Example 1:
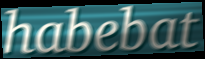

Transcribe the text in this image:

habebat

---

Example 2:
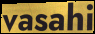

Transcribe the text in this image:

vasahi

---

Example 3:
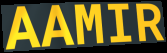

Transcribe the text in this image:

AAMIR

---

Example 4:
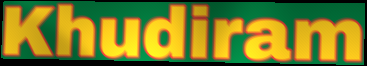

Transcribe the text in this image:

Khudiram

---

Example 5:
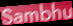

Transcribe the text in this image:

Sambhu